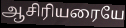
ஆசிரியரையே